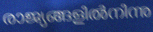
രാജ്യങ്ങളിൽനിന്നു